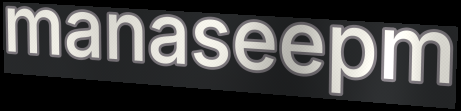
manaseepm